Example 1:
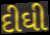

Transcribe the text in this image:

દીઘી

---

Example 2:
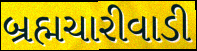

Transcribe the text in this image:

બ્રહ્મચારીવાડી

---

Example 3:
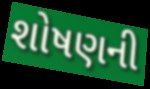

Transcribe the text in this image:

શોષણની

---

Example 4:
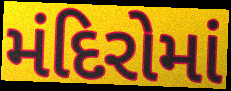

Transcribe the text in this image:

મંદિરોમાં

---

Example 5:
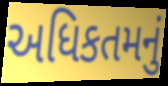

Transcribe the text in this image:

અધિકતમનું